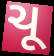
ચૂ